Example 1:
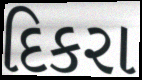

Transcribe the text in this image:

દિકરા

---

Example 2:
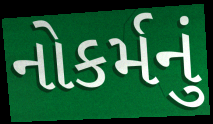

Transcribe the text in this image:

નોકર્મનું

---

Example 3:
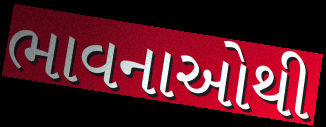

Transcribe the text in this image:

ભાવનાઓથી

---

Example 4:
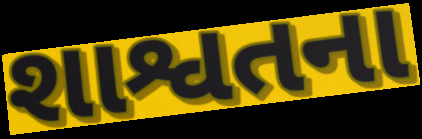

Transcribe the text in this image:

શાશ્વતના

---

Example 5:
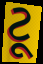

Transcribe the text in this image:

ટૂ